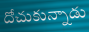
దోచుకున్నాడు